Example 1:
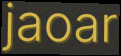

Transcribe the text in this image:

jaoar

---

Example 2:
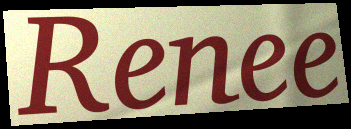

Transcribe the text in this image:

Renee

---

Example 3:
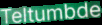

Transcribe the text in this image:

Teltumbde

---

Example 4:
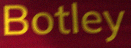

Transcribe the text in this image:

Botley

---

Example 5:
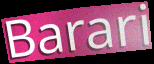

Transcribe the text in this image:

Barari